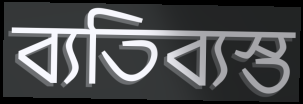
ব্যতিব্যস্ত